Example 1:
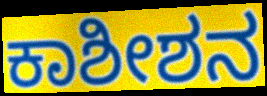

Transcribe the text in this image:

ಕಾಶೀಶನ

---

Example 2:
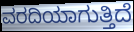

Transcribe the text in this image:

ವರದಿಯಾಗುತ್ತಿದೆ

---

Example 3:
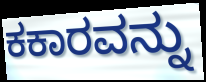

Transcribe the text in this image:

ಕಕಾರವನ್ನು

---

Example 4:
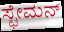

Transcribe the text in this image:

ಸ್ಟೇಮನ್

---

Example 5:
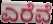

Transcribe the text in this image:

ಎರೆವೆ